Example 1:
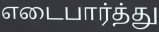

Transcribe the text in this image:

எடைபார்த்து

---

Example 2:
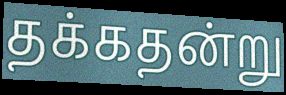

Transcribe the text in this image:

தக்கதன்று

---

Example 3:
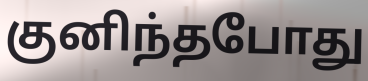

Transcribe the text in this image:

குனிந்தபோது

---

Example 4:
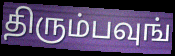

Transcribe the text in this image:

திரும்பவுங்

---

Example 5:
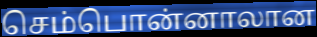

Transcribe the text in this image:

செம்பொன்னாலான